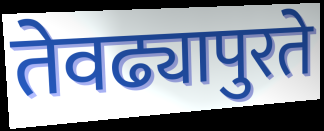
तेवढ्यापुरते